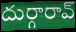
దుర్గారావ్